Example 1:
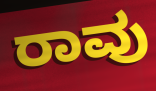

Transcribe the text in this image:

ರಾವು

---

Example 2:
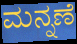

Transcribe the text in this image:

ಮನ್ನಣೆ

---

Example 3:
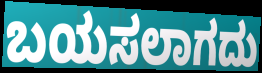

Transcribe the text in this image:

ಬಯಸಲಾಗದು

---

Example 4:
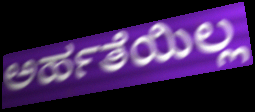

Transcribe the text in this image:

ಅರ್ಹತೆಯಿಲ್ಲ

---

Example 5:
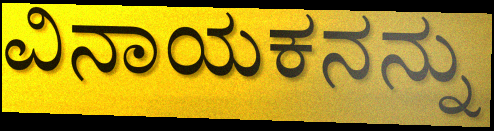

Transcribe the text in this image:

ವಿನಾಯಕನನ್ನು